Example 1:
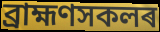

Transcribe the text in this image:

ব্ৰাহ্মণসকলৰ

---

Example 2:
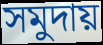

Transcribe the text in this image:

সমুদায়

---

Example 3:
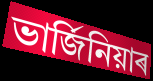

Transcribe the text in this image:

ভাৰ্জিনিয়াৰ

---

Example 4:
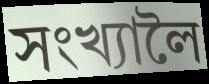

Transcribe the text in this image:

সংখ্যালৈ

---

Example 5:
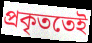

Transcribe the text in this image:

প্ৰকৃততেই